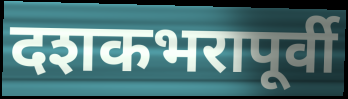
दशकभरापूर्वी